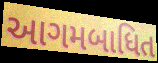
આગમબાધિત